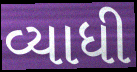
વ્યાધી